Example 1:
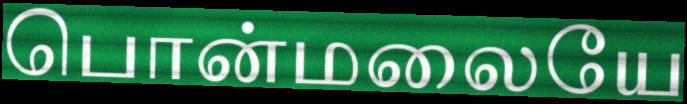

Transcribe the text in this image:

பொன்மலையே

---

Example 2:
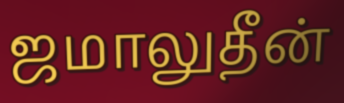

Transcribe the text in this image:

ஜமாலுதீன்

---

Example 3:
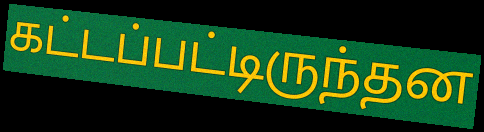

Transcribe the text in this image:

கட்டப்பட்டிருந்தன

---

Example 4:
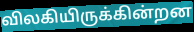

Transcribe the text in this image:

விலகியிருக்கின்றன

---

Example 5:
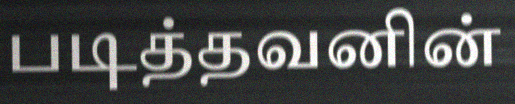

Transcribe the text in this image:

படித்தவனின்